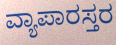
ವ್ಯಾಪಾರಸ್ತರ